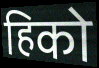
हिको